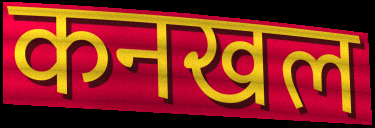
कनखल